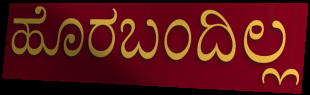
ಹೊರಬಂದಿಲ್ಲ